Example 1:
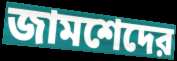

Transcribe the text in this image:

জামশেদের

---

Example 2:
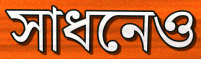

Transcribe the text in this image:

সাধনেও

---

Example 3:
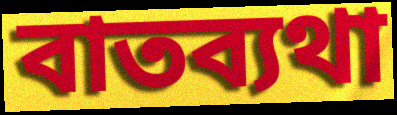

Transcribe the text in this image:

বাতব্যথা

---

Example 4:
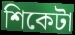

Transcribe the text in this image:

শিকেটা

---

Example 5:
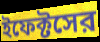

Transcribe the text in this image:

ইফেক্টসের